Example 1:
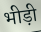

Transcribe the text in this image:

भीड़ी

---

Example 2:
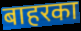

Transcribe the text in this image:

बाहरका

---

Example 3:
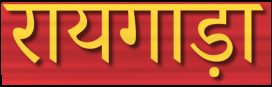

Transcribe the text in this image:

रायगाड़ा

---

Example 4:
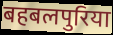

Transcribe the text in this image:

बहबलपुरिया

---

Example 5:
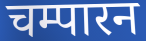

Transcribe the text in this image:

चम्पारन